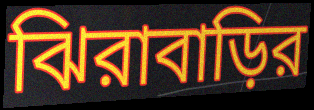
ঝিরাবাড়ির